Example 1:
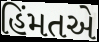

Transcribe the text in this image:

હિંમતએ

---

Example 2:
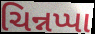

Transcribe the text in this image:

ચિન્નપ્પા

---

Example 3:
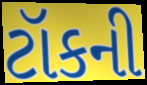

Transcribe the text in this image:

ટૉકની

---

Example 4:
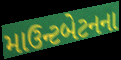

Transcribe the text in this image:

માઉન્ટબેટનના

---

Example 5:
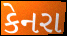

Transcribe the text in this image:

કેનરા